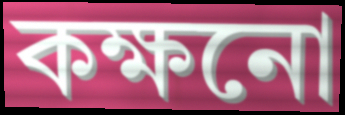
কক্ষনো